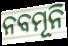
ନବମୂନି